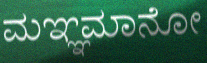
ಮಞ್ಞಮಾನೋ